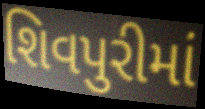
શિવપુરીમાં